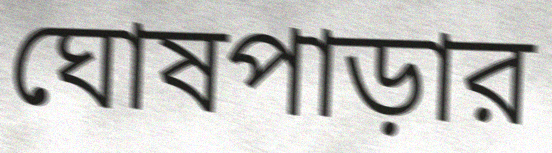
ঘোষপাড়ার